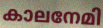
കാലനേമി